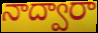
నాద్వారా